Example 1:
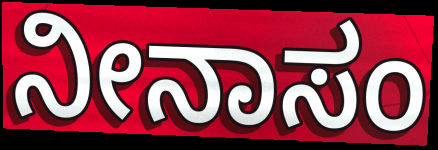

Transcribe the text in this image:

ನೀನಾಸಂ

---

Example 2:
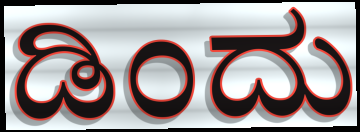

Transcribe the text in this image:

ಡಿಂದು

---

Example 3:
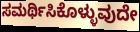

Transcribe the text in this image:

ಸಮರ್ಥಿಸಿಕೊಳ್ಳುವುದೇ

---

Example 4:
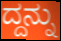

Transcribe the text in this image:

ದ್ದನ್ನು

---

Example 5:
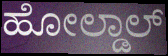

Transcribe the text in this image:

ಹೋಲ್ಡಾಲ್